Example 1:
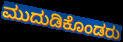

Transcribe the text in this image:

ಮುದುಡಿಕೊಂಡರು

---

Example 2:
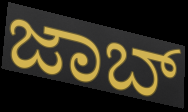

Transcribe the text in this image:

ಜಾಬ್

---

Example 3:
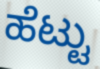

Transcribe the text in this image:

ಹೆಟ್ಟು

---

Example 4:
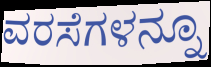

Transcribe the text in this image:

ವರಸೆಗಳನ್ನೂ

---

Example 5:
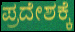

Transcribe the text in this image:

ಪ್ರದೇಶಕ್ಕೆ